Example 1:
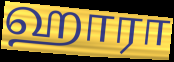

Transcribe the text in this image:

ஹாரா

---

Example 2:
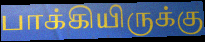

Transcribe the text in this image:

பாக்கியிருக்கு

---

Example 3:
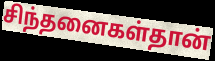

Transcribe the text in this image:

சிந்தனைகள்தான்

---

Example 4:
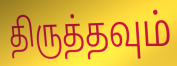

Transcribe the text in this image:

திருத்தவும்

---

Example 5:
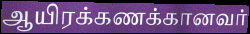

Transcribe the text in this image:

ஆயிரக்கணக்கானவர்